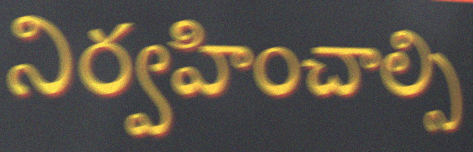
నిర్వహించాల్సి